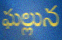
ఘల్లున